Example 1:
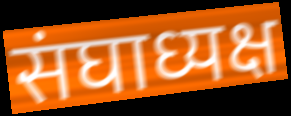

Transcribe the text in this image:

संघाध्यक्ष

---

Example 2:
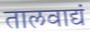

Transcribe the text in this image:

तालवाद्यं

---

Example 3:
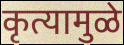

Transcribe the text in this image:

कृत्यामुळे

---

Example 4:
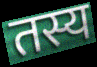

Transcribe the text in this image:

तस्य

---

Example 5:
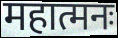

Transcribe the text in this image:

महात्मनः